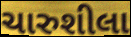
ચારુશીલા